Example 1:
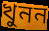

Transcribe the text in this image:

খুনন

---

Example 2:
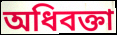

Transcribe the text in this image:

অধিবক্তা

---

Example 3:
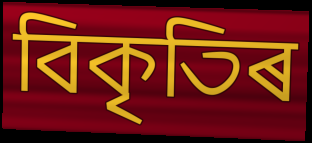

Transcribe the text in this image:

বিকৃতিৰ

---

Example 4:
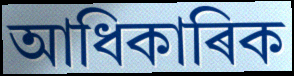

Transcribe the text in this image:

আধিকাৰিক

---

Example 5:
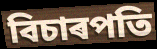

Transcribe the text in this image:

বিচাৰপতি